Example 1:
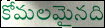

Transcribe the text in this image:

కోమలమైనది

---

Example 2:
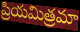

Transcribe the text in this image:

ప్రియమిత్రమా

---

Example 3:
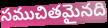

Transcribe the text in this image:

సముచితమైనది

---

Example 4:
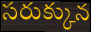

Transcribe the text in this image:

సరుక్కున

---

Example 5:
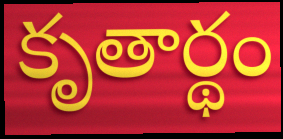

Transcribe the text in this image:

కృతార్థం